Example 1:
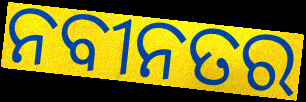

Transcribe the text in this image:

ନବୀନତର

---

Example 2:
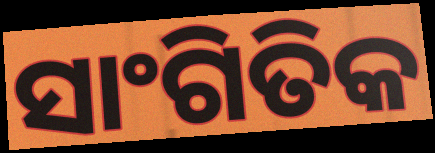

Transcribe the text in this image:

ସାଂଗିତିକ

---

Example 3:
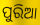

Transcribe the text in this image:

ପୁରିଆ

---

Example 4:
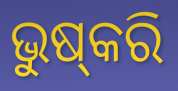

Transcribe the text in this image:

ଭୁଷ୍‍କରି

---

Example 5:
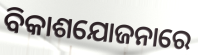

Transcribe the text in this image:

ବିକାଶଯୋଜନାରେ